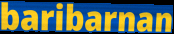
baribarnan